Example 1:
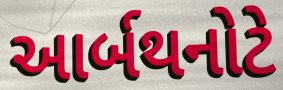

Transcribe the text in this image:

આર્બથનોટે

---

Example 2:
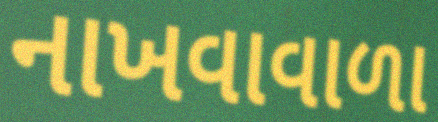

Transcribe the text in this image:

નાખવાવાળા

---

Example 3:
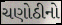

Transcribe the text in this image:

ચણોઠીનો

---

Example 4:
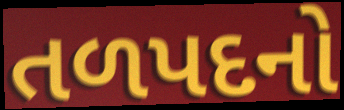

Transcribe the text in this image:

તળપદનો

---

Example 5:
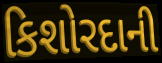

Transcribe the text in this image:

કિશોરદાની